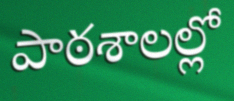
పాఠశాలల్లో